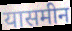
यासमीन